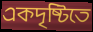
একদৃষ্টিতে